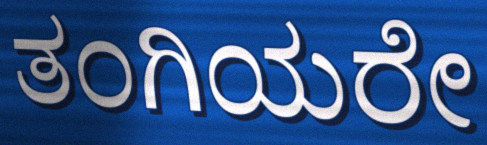
ತಂಗಿಯರೇ